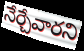
నేర్చేవారని